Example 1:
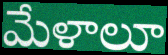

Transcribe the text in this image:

మేళాలూ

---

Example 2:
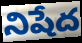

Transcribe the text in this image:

నిషేద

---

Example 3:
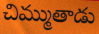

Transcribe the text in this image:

చిమ్ముతాడు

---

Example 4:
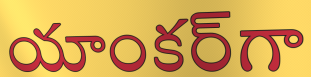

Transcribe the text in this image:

యాంకర్‌గా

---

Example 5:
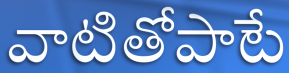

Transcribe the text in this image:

వాటితోపాటే